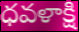
ధవళాక్షి